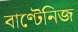
বাণ্টেনিজ